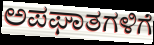
ಅಪಘಾತಗಳಿಗೆ